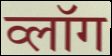
व्लॉग